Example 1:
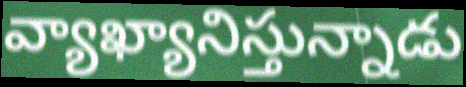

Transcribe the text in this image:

వ్యాఖ్యానిస్తున్నాడు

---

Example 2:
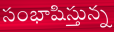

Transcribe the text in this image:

సంభాషిస్తున్న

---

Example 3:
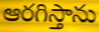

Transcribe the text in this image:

ఆరగిస్తాను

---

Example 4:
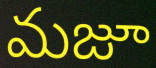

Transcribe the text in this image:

మజూ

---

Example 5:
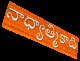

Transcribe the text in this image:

నాధ్యాత్మికాది